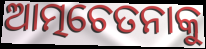
ଆତ୍ମଚେତନାକୁ